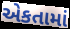
એકતામાં